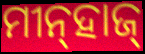
ମୀନ୍‌ହାଜ୍